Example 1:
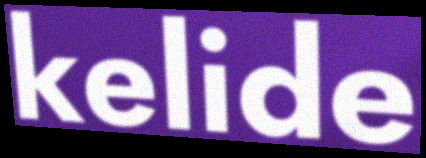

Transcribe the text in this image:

kelide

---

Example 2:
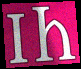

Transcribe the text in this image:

Ih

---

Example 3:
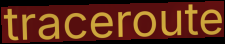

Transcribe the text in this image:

traceroute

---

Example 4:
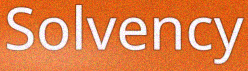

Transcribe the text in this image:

Solvency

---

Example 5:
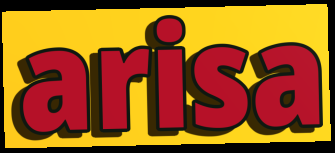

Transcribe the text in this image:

arisa